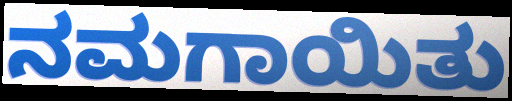
ನಮಗಾಯಿತು